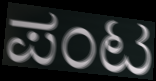
ಪಂಟ